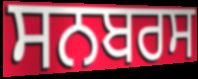
ਸਨਬਰਸ